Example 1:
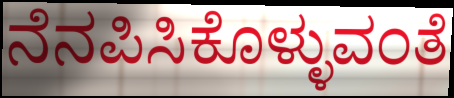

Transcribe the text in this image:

ನೆನಪಿಸಿಕೊಳ್ಳುವಂತೆ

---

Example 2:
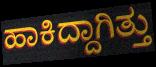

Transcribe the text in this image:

ಹಾಕಿದ್ದಾಗಿತ್ತು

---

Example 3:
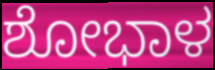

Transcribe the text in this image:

ಶೋಭಾಳ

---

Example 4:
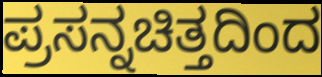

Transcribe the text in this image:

ಪ್ರಸನ್ನಚಿತ್ತದಿಂದ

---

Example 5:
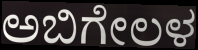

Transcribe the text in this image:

ಅಬಿಗೇಲಳ